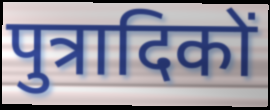
पुत्रादिकों